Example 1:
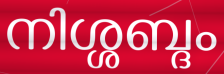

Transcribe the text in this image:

നിശ്ശബ്ദം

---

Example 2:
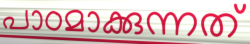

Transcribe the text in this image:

പാഠമാക്കുന്നത്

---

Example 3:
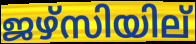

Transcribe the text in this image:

ജഴ്സിയില്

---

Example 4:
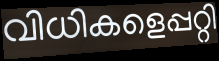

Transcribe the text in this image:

വിധികളെപ്പറ്റി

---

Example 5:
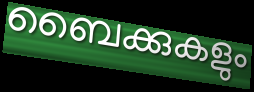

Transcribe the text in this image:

ബൈക്കുകളും